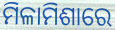
ମିଳାମିଶାରେ